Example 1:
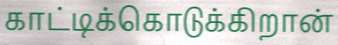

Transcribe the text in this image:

காட்டிக்கொடுக்கிறான்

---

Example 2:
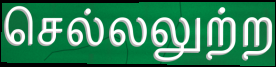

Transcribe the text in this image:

செல்லலுற்ற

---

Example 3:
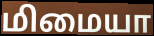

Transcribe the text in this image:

மிமையா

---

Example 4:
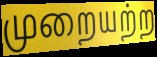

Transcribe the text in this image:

முறையற்ற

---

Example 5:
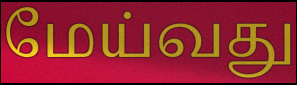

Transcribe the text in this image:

மேய்வது